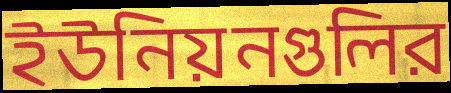
ইউনিয়নগুলির